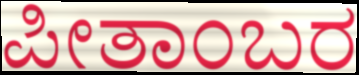
ಪೀತಾಂಬರ